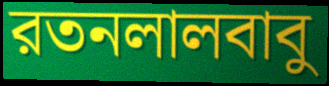
রতনলালবাবু